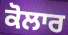
ਕੋਲਾਰ